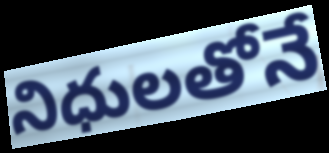
నిధులతోనే